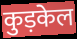
कुड़केल